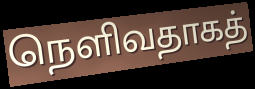
நெளிவதாகத்